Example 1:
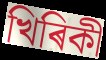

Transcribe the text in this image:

খিৰিকী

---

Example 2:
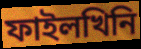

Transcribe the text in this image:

ফাইলখিনি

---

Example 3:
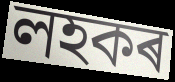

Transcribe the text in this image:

লহকৰ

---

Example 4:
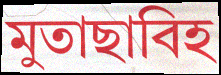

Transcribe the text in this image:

মুতাছাবিহ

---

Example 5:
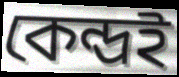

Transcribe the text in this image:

কেন্দ্ৰই